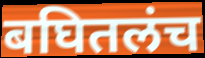
बघितलंच